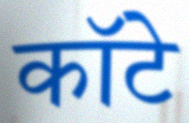
कॉटे